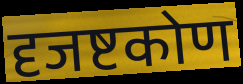
दृजष्टकोण